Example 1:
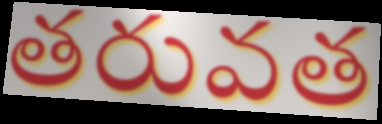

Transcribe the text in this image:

తరువత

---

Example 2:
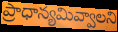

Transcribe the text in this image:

ప్రాధాన్యమివ్వాలని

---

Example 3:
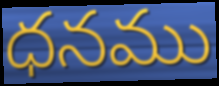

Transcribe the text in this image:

ధనము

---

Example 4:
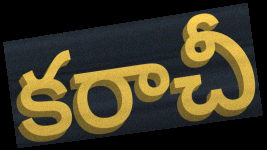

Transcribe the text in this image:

కరాచీ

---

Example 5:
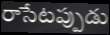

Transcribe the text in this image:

రాసేటప్పుడు